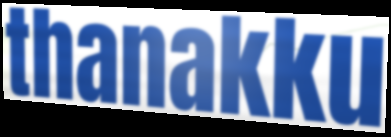
thanakku